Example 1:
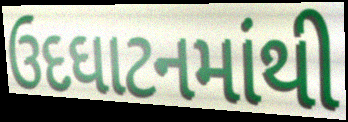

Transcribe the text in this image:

ઉદઘાટનમાંથી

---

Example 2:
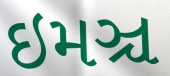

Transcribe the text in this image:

ઇમઞ્ચ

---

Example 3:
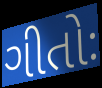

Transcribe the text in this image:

ગીતોઃ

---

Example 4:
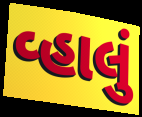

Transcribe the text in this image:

વ્હાલું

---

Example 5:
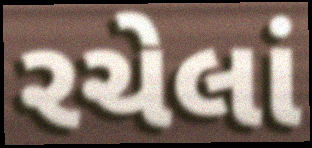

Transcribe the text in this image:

રચેલાં